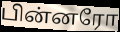
பின்னரோ